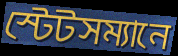
স্টেটসম্যানে